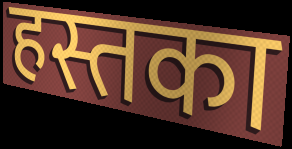
हस्तका